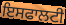
ਇਸਫਾਲਟੀ